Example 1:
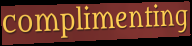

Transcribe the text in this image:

complimenting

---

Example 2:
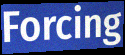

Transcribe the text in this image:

Forcing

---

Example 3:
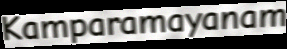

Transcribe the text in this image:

Kamparamayanam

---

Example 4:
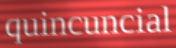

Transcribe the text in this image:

quincuncial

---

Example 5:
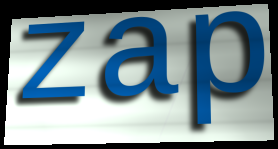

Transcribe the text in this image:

zap